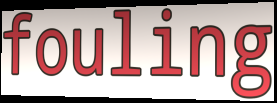
fouling